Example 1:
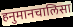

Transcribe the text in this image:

हनुमानचालिसा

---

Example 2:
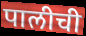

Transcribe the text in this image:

पालीची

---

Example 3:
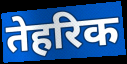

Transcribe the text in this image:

तेहरिक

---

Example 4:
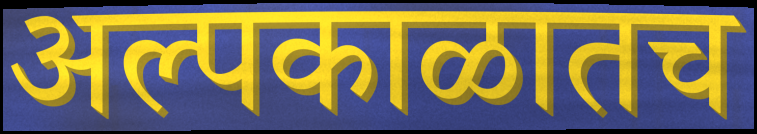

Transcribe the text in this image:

अल्पकाळातच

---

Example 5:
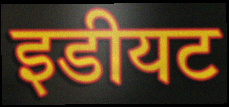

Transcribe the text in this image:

इडीयट